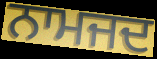
ਨਾਮਜਦ